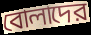
বোলাদের